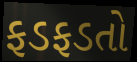
ફડફડતો